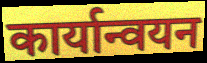
कार्यान्वयन